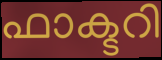
ഫാക്ടറി